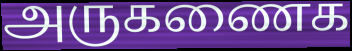
அருகணைக